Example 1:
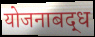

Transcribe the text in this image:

योजनाबद्ध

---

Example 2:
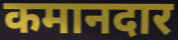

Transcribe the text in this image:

कमानदार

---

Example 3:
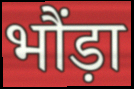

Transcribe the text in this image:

भौंड़ा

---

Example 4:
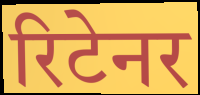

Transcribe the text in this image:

रिटेनर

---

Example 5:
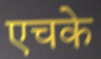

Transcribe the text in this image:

एचके